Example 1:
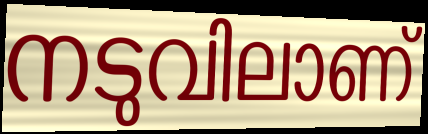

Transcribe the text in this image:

നടുവിലാണ്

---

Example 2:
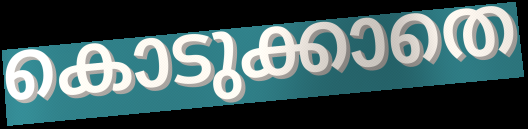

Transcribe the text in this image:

കൊടുക്കാതെ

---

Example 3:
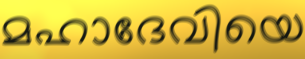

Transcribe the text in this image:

മഹാദേവിയെ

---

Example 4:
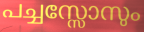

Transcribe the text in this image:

പച്ചസ്സോസും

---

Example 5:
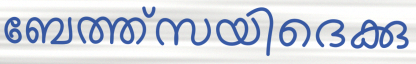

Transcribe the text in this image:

ബേത്ത്സയിദെക്കു